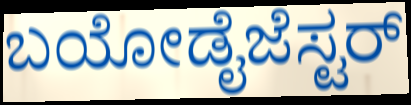
ಬಯೋಡೈಜೆಸ್ಟರ್